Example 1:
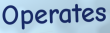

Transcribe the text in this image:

Operates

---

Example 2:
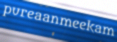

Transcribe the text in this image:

pureaanmeekam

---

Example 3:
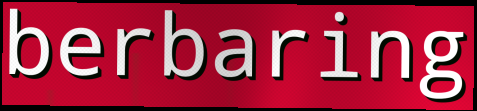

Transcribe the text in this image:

berbaring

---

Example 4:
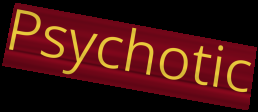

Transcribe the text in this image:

Psychotic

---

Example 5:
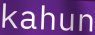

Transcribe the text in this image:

kahun